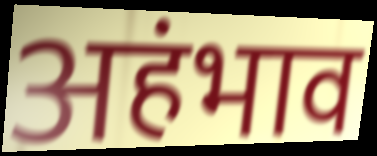
अहंभाव